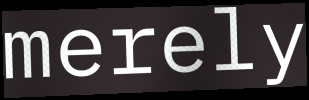
merely